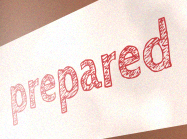
prepared